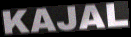
KAJAL